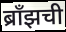
ब्राँझची